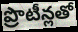
ప్రొటీన్లతో